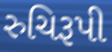
રુચિરૂપી